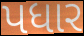
પધાર